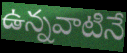
ఉన్నవాటినే